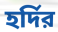
হর্দির